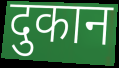
दुकान